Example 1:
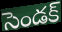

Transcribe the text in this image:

సెండక్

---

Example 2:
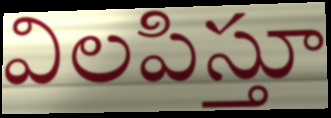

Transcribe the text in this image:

విలపిస్తూ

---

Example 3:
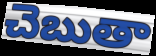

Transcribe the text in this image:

చెబుతా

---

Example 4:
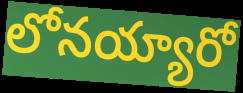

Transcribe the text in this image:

లోనయ్యారో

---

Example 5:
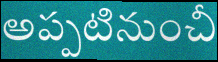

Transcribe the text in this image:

అప్పటినుంచీ